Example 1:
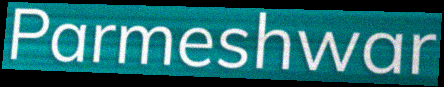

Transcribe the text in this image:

Parmeshwar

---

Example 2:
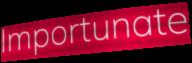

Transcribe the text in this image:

Importunate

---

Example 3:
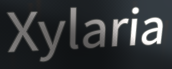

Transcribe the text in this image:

Xylaria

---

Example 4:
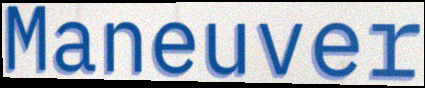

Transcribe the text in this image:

Maneuver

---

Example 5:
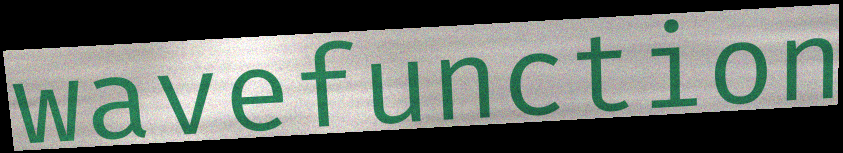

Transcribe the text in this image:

wavefunction